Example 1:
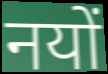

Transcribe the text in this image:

नयों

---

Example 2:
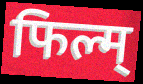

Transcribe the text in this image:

फिल्म्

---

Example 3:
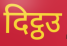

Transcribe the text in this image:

दिट्ठउ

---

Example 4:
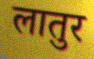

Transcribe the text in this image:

लातुर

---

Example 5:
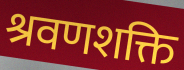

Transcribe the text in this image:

श्रवणशक्ति